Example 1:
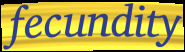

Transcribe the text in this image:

fecundity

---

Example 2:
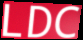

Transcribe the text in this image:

LDC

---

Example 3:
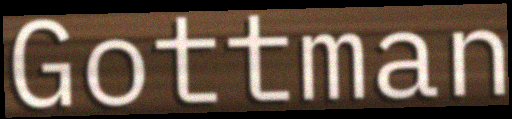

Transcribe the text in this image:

Gottman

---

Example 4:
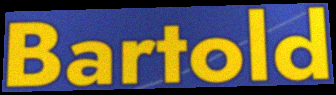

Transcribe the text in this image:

Bartold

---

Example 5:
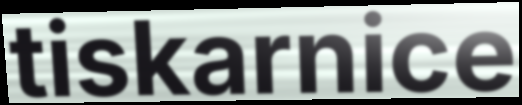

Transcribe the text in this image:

tiskarnice